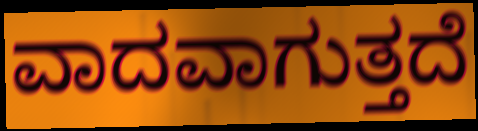
ವಾದವಾಗುತ್ತದೆ